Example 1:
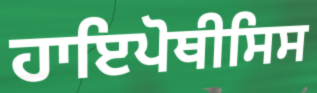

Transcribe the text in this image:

ਹਾਇਪੋਥੀਸਿਸ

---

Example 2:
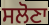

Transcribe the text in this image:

ਸਲੋਣਾ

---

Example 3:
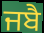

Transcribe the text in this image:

ਜਬੈ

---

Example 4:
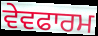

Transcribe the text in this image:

ਵੇਵਫਾਰਮ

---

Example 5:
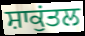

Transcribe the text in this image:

ਸ਼ਾਕੁਂਤਲ